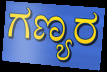
ಗಣ್ಯರ